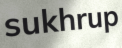
sukhrup